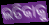
ଲତିକାକୁ